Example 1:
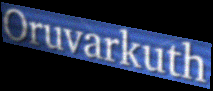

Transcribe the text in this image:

Oruvarkuth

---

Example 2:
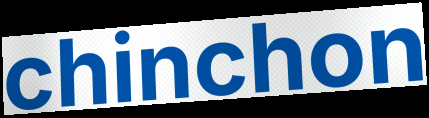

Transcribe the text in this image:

chinchon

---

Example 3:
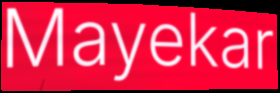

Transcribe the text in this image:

Mayekar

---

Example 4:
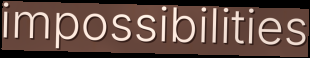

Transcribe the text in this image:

impossibilities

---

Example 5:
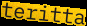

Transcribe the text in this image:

teritta